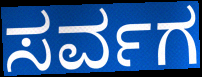
ಸರ್ವಗ